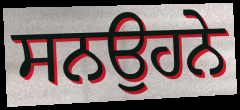
ਸਨਉਹਨੇ